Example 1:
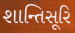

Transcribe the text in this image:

શાન્તિસૂરિ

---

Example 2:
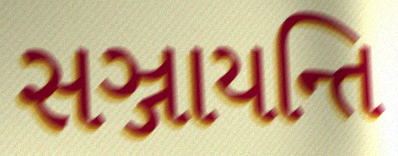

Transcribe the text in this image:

સઞ્જાયન્તિ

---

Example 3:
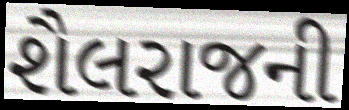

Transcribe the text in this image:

શૈલરાજની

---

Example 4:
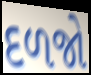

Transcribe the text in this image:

દળજો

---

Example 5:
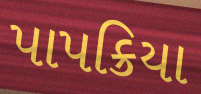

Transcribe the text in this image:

પાપક્રિયા